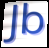
Jb